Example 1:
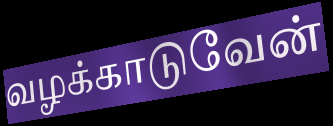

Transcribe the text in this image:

வழக்காடுவேன்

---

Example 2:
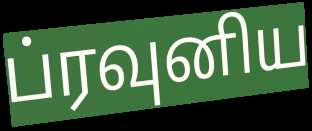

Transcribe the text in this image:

ப்ரவுனிய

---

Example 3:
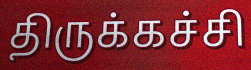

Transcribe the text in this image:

திருக்கச்சி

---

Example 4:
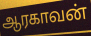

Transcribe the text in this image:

ஆரகாவன்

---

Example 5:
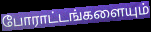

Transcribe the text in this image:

போராட்டங்களையும்